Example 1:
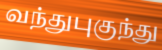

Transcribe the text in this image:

வந்துபுகுந்து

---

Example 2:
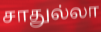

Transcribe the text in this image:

சாதுல்லா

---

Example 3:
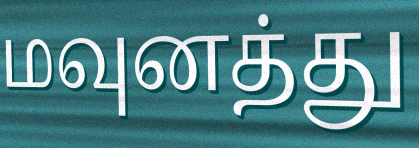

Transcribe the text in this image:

மவுனத்து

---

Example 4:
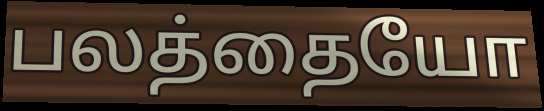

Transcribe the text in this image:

பலத்தையோ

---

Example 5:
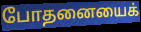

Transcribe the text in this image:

போதனையைக்